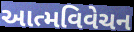
આત્મવિવેચન